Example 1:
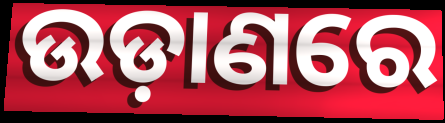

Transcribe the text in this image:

ଉଡ଼ାଣରେ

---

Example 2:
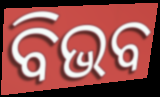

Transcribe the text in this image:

ବିଭବ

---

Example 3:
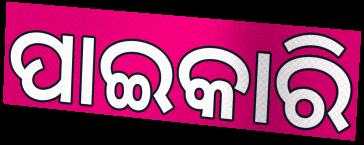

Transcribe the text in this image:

ପାଇକାରି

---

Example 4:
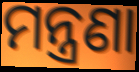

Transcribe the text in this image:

ମନ୍ତ୍ରଣା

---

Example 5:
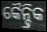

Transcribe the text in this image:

କୈନ୍ଦ୍ରିକ